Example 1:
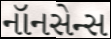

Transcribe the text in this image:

નૉનસેન્સ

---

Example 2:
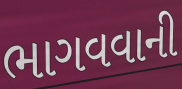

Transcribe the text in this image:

ભાગવવાની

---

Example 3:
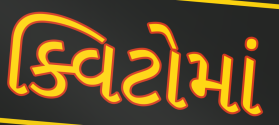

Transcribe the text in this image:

ક્વિટોમાં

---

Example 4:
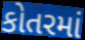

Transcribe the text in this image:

કોતરમાં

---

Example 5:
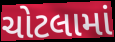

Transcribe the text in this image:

ચોટલામાં